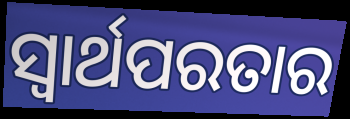
ସ୍ଵାର୍ଥପରତାର